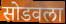
सोडवला